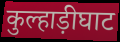
कुल्हाड़ीघाट